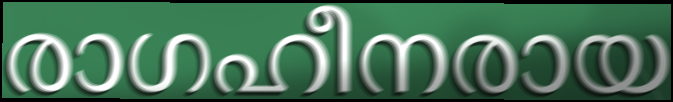
രാഗഹീനരായ